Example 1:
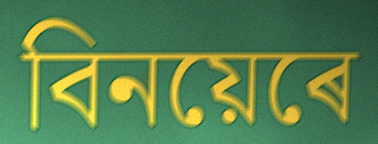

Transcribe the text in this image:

বিনয়েৰে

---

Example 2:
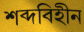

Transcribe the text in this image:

শব্দবিহীন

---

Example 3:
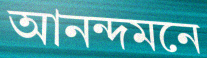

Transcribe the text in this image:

আনন্দমনে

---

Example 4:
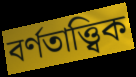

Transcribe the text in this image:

বৰ্ণতাত্ত্বিক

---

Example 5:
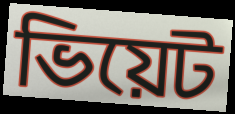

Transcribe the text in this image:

ভিয়েট